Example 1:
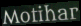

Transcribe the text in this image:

Motihar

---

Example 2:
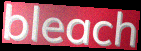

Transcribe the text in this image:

bleach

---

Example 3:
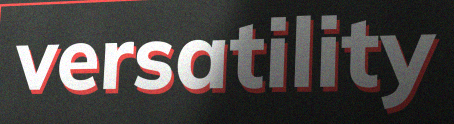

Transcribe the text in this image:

versatility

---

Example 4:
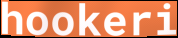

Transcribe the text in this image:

hookeri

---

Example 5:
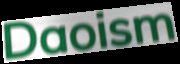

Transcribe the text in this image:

Daoism